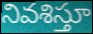
నివశిస్తూ